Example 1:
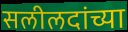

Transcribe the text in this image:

सलीलदांच्या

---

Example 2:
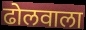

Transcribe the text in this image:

ढोलवाला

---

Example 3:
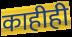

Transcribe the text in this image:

काहीही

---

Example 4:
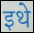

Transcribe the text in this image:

इथे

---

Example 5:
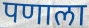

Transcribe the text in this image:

पणाला